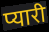
प्यारी